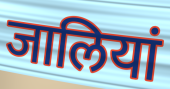
जालियां